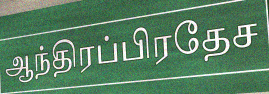
ஆந்திரப்பிரதேச